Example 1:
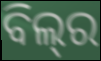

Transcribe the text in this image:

ବିଲ୍‌ର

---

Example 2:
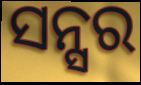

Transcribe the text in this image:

ସନ୍ସର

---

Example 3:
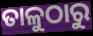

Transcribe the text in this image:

ତାଳୁଠାରୁ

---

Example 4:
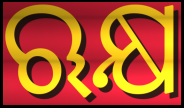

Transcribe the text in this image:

ଋକ୍ଷ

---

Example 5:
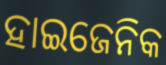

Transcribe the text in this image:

ହାଇଜେନିକ